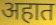
अहात